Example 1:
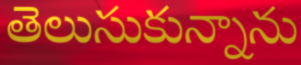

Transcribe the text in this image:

తెలుసుకున్నాను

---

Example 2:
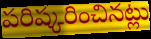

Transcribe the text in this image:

పరిష్కరించినట్లు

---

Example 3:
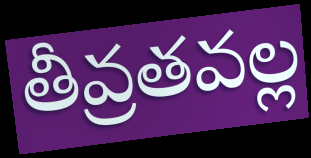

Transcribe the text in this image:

తీవ్రతవల్ల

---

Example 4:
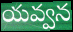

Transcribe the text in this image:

యవ్వన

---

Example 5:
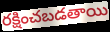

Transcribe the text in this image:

రక్షించబడతాయి